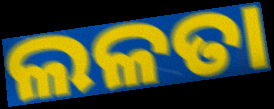
ଲଳତା